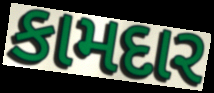
કામદાર